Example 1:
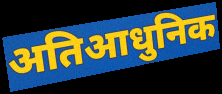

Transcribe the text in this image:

अतिआधुनिक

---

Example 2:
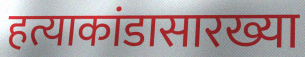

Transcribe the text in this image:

हत्याकांडासारख्या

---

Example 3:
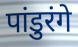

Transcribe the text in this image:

पांडुरंगे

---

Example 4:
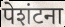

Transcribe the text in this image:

पेशंटना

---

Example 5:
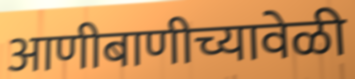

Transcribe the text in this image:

आणीबाणीच्यावेळी